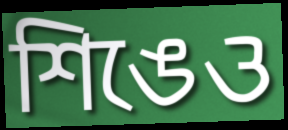
শিঙেও